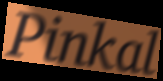
Pinkal